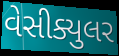
વેસીક્યુલર